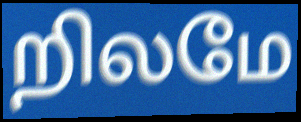
றிலமே